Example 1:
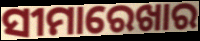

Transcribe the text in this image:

ସୀମାରେଖାର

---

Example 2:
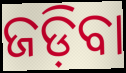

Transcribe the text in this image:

ଜଡ଼ିବା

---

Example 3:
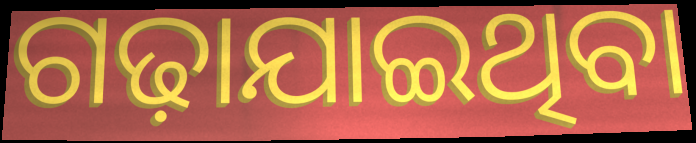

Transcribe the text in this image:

ଗଢ଼ାଯାଇଥିବା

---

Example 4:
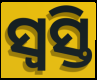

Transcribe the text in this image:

ସ୍ଵସ୍ତି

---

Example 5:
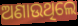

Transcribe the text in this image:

ଅଣାଉଥିଲେ